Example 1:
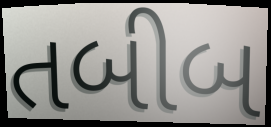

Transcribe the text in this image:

તબીબ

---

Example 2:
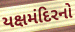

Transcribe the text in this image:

યક્ષમંદિરનો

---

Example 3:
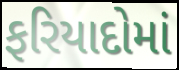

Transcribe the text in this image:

ફરિયાદોમાં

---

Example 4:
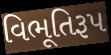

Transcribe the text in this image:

વિભૂતિરૂપ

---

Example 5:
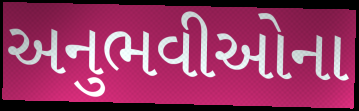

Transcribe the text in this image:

અનુભવીઓના